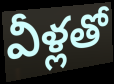
వీళ్లతో